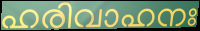
ഹരിവാഹനഃ